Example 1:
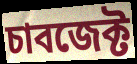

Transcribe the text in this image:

চাবজেক্ট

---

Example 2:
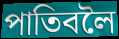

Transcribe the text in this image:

পাতিবলৈ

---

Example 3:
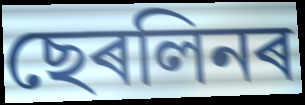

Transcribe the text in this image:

ছেৰলিনৰ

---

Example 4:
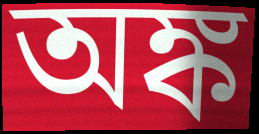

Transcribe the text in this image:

অঙ্ক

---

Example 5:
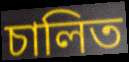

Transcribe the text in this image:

চালিত